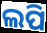
ଲପି